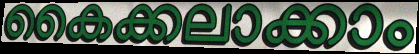
കൈക്കലാക്കാം